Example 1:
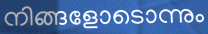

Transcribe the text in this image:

നിങ്ങളോടൊന്നും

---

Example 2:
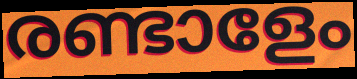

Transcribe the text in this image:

രണ്ടാളേം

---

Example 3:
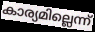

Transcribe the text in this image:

കാര്യമില്ലെന്ന്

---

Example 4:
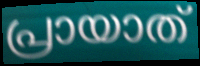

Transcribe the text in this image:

പ്രായാത്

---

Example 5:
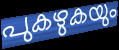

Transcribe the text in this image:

പുകഴുകയും